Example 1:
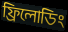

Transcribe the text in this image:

ফ্রিলোডিং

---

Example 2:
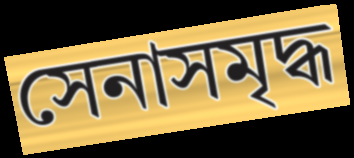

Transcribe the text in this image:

সেনাসমৃদ্ধ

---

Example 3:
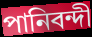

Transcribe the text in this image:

পানিবন্দী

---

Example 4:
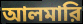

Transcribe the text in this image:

আলমারি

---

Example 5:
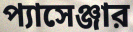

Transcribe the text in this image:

প্যাসেঞ্জার